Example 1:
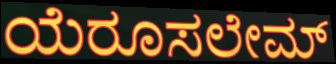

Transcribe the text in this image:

ಯೆರೂಸಲೇಮ್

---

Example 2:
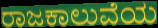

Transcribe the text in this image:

ರಾಜಕಾಲುವೆಯ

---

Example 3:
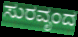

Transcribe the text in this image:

ಸುರವೃಂದ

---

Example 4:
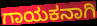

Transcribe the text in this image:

ಗಾಯಕನಾಗಿ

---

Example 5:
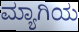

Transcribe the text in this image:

ಮ್ಯಾಗಿಯ